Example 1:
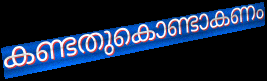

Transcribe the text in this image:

കണ്ടതുകൊണ്ടാകണം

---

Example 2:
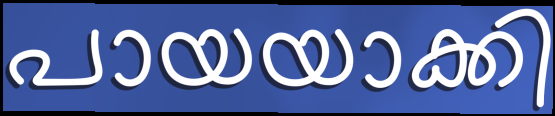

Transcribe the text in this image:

പായയാക്കി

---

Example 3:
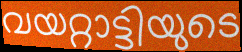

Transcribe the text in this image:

വയറ്റാട്ടിയുടെ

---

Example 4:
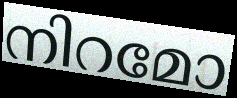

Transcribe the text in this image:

നിറമോ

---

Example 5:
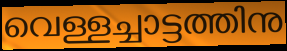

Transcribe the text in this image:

വെള്ളച്ചാട്ടത്തിനു